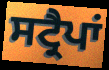
ਸਟ੍ਰੈਪਾਂ